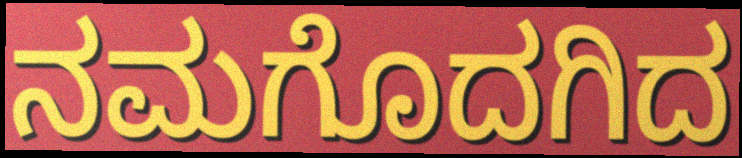
ನಮಗೊದಗಿದ